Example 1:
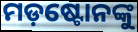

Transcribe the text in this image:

ମଡ଼ଷ୍ଟୋନଙ୍କୁ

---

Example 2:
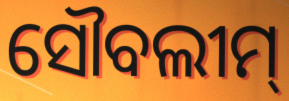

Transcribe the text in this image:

ସୌବଲୀମ୍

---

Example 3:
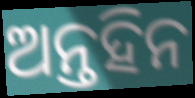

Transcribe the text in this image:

ଅନ୍ତହିନ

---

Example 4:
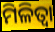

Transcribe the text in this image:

ମିଳିତ୍ଵା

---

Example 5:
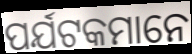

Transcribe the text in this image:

ପର୍ଯଟକମାନେ